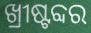
ଖ୍ରୀଷ୍ଟବ୍ଦର